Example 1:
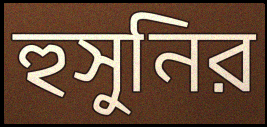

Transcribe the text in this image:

হুসুনির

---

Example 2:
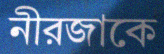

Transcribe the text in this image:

নীরজাকে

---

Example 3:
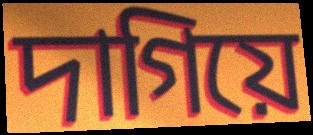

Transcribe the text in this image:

দাগিয়ে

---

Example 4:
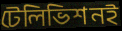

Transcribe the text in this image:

টেলিভিশনই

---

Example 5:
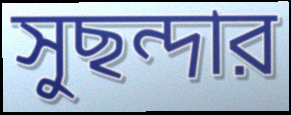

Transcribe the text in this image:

সুছন্দার